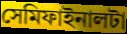
সেমিফাইনালটা